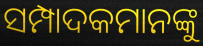
ସମ୍ପାଦକମାନଙ୍କୁ